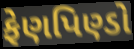
ફેણપિણ્ડો